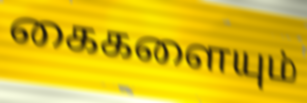
கைகளையும்